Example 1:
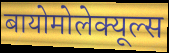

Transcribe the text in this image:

बायोमोलेक्यूल्स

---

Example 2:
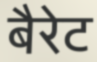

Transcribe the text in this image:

बैरेट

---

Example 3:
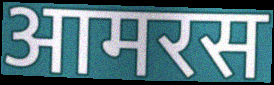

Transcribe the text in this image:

आमरस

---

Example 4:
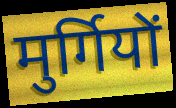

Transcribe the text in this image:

मुर्गियों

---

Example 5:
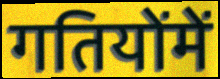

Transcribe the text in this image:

गतियोंमें